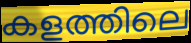
കളത്തിലെ